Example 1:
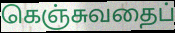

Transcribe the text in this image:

கெஞ்சுவதைப்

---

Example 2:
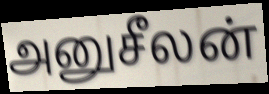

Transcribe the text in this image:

அனுசீலன்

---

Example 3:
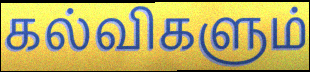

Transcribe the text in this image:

கல்விகளும்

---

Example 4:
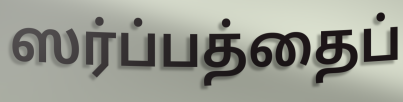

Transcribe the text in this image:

ஸர்ப்பத்தைப்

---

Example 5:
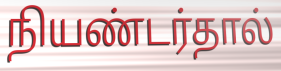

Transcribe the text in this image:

நியண்டர்தால்